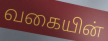
வகையின்